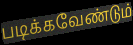
படிக்கவேண்டும்